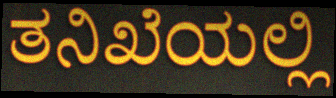
ತನಿಖೆಯಲ್ಲಿ